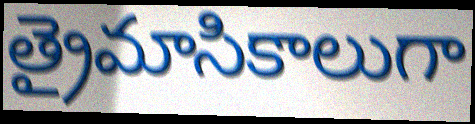
త్రైమాసికాలుగా